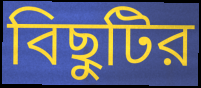
বিছুটির